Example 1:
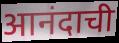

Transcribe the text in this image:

आनंदाची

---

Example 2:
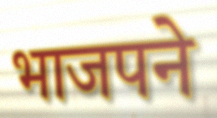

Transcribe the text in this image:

भाजपने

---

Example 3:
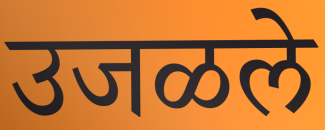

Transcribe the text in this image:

उजळले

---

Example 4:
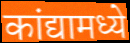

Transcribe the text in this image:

कांद्यामध्ये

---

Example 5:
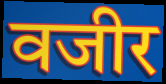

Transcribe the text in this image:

वजीर